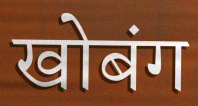
खोबंग